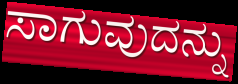
ಸಾಗುವುದನ್ನು